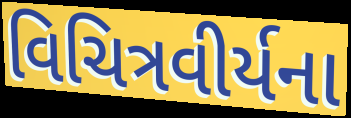
વિચિત્રવીર્યના